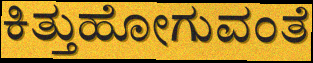
ಕಿತ್ತುಹೋಗುವಂತೆ